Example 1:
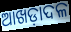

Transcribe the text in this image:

ଆଖଡ଼ାଦଳ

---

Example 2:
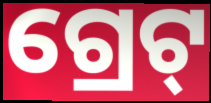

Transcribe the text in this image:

ଗ୍ରେଟ୍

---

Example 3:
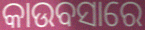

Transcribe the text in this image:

କାଉବସାରେ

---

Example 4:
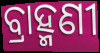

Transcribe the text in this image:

ବ୍ରାହ୍ମଣୀ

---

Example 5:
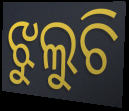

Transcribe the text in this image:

ଝୁଲୁଚି